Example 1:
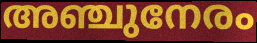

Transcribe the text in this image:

അഞ്ചുനേരം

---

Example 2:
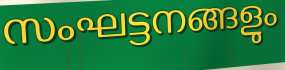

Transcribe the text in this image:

സംഘട്ടനങ്ങളും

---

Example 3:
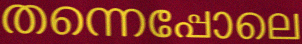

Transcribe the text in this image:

തന്നെപ്പോലെ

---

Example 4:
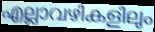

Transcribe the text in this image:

എല്ലാവഴികളിലും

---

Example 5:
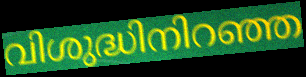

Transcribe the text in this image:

വിശുദ്ധിനിറഞ്ഞ